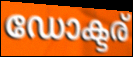
ഡോക്ടര്